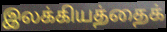
இலக்கியத்தைக்